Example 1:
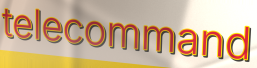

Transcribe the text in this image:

telecommand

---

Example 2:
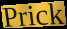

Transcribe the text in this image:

Prick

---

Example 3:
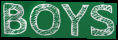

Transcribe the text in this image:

BOYS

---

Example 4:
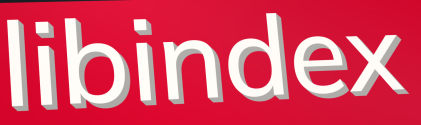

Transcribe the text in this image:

libindex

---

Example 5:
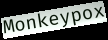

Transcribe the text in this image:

Monkeypox